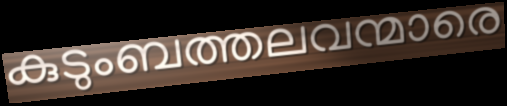
കുടുംബത്തലവന്മാരെ